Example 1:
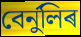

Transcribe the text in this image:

বেৰ্নুলিৰ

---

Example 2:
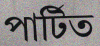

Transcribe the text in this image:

পাৰ্টিত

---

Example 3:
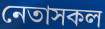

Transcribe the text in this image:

নেতাসকল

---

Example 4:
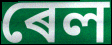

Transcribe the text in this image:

ৰেল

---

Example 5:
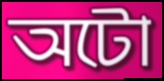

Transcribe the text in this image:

অটো